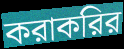
করাকরির